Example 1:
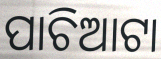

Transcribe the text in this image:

ପାଚିଆଟା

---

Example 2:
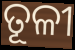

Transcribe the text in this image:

ତୂଳୀ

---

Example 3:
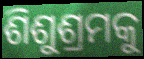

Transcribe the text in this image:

ଶିଶୁଶ୍ରମକୁ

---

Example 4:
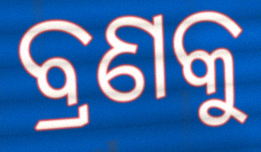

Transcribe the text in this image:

ବ୍ରଣକୁ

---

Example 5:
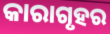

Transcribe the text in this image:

କାରାଗୃହର